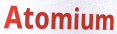
Atomium